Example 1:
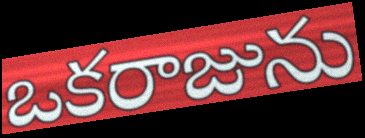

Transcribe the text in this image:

ఒకరాజును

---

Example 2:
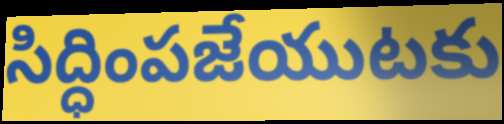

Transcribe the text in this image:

సిద్ధింపజేయుటకు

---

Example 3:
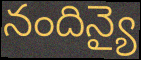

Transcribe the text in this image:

నందిన్యై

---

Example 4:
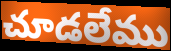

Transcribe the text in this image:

చూడలేము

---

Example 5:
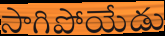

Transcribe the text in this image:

సాగిపోయేడు